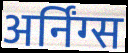
अर्निंग्स